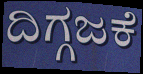
ದಿಗ್ಗಜಕೆ